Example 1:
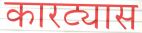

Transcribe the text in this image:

कारट्यास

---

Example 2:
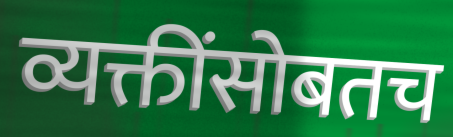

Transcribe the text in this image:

व्यक्तींसोबतच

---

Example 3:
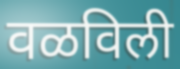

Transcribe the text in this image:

वळविली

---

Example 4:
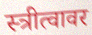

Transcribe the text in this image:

स्त्रीत्वावर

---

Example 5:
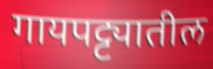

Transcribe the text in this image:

गायपट्ट्यातील